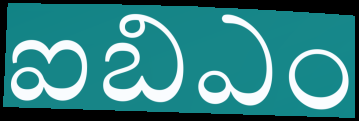
ఐబిఎం